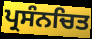
ਪ੍ਰਸੰਨਚਿਤ